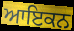
ਆਇਕਨ